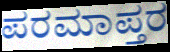
ಪರಮಾಪ್ತರ